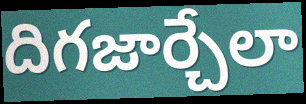
దిగజార్చేలా